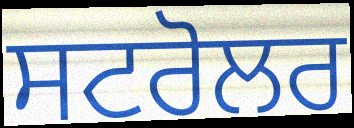
ਸਟਰੋਲਰ